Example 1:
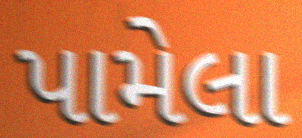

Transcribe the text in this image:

પામેલા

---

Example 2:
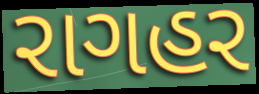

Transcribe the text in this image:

રાગહર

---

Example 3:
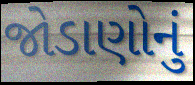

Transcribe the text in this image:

જોડાણોનું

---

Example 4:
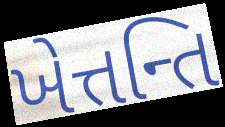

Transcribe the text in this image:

ખેત્તન્તિ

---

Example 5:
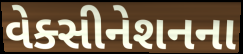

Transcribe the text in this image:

વેક્સીનેશનના